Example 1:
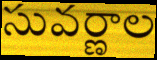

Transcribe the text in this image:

సువర్ణాల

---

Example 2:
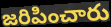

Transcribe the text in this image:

జరిపించారు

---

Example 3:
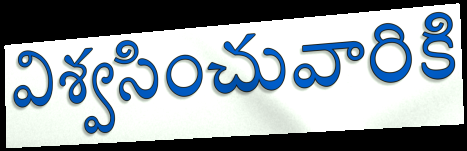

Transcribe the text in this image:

విశ్వసించువారికి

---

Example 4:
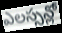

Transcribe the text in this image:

ఎలస్సన్లో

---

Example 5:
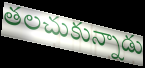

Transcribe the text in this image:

తలచుకున్నాడు